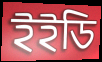
ইইডি